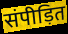
संपीड़ित